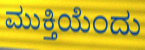
ಮುಕ್ತಿಯೆಂದು